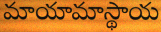
మాయామాస్థాయ